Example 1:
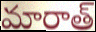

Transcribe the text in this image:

మారాత్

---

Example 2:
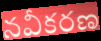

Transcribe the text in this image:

నవీకరణ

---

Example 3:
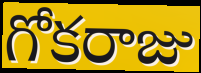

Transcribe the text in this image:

గోకరాజు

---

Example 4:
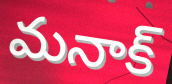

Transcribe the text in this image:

మనాక్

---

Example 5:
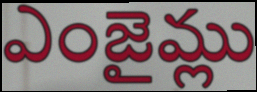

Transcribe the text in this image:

ఎంజైమ్లు